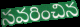
సవరించిన